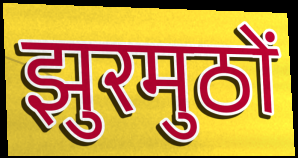
झुरमुठों